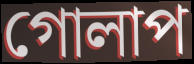
গোলাপ